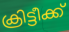
ക്രിട്ടീക്ക്